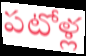
పటోళ్ల